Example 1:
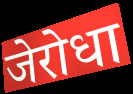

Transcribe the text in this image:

जेरोधा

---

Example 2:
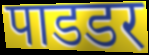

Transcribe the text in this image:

पाडडर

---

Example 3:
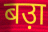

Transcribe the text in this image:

बउ़ा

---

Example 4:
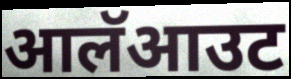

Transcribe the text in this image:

आलॅआउट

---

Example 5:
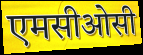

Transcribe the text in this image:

एमसीओसी